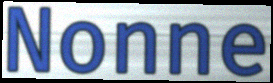
Nonne